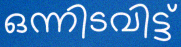
ഒന്നിടവിട്ട്